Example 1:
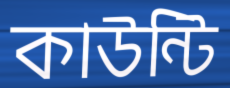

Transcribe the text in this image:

কাউন্টি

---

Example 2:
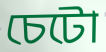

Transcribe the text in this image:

চেটো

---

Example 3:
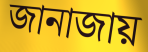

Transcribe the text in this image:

জানাজায়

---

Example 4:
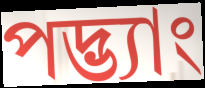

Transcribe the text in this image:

পদ্ভ্যাং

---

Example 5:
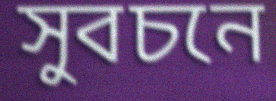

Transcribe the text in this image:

সুবচনে